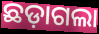
ଛଡ଼ାଗଲା